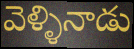
వెళ్ళినాడు